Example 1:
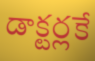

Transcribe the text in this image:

డాక్టర్లకే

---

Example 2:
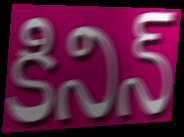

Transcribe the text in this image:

కినిన్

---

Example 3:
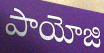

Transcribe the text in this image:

పాయోజి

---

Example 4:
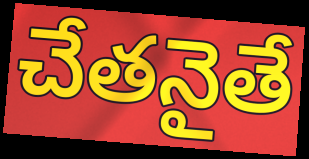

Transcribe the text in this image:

చేతనైతే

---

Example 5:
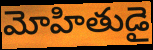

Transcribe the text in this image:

మోహితుడై